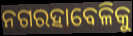
ନଗରହାବେଳିକୁ